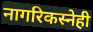
नागरिकस्नेही